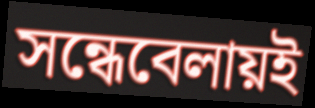
সন্ধেবেলায়ই